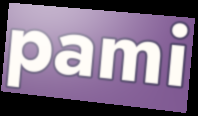
pami